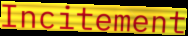
Incitement